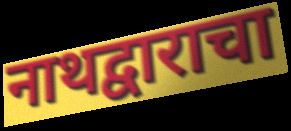
नाथद्वाराचा